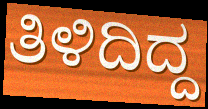
ತಿಳಿದಿದ್ದ